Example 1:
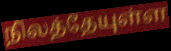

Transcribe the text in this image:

நிலத்தேயுள்ள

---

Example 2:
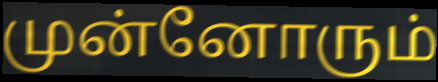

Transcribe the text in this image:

முன்னோரும்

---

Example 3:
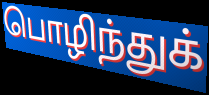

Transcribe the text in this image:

பொழிந்துக்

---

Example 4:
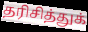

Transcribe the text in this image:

தரிசித்துக்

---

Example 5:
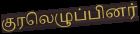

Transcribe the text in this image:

குரலெழுப்பினர்